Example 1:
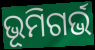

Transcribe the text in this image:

ଭୂମିଗର୍ଭ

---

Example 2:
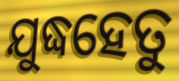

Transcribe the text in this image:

ଯୁଦ୍ଧହେତୁ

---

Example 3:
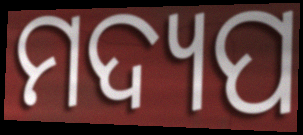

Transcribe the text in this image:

ମଦ୍ୟପ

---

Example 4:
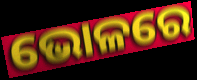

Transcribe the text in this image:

ଭୋଳରେ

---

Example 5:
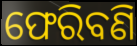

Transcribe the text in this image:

ଫେରିବଣି